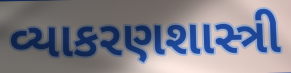
વ્યાકરણશાસ્ત્રી